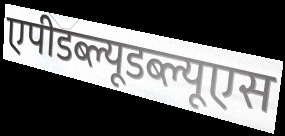
एपीडब्ल्यूडब्ल्यूएस